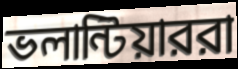
ভলান্টিয়াররা